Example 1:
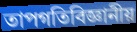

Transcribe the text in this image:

তাপগতিবিজ্ঞানীয়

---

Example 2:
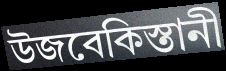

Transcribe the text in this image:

উজবেকিস্তানী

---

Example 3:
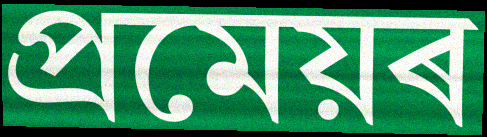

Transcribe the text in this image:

প্ৰমেয়ৰ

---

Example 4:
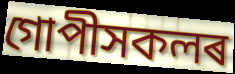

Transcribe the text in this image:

গোপীসকলৰ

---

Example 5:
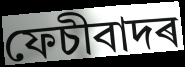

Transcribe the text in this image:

ফেচীবাদৰ